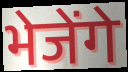
भेजेंगे